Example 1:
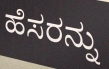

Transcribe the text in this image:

ಹೆಸರನ್ನು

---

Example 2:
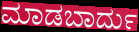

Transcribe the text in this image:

ಮಾಡಬಾರ್ದು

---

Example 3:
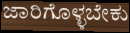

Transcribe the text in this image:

ಜಾರಿಗೊಳ್ಳಬೇಕು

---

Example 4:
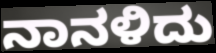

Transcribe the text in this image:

ನಾನಳಿದು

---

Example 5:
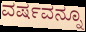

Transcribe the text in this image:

ವರ್ಷವನ್ನೂ